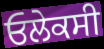
ਓਲੇਕਸੀ